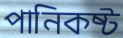
পানিকষ্ট